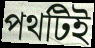
পথটিই